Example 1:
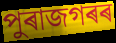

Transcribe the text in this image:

পুৰাজগৰৰ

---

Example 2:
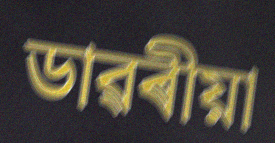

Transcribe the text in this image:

ডাৱৰীয়া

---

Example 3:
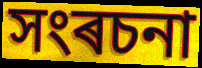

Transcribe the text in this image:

সংৰচনা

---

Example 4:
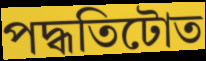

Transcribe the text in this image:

পদ্ধতিটোত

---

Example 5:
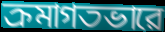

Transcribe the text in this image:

ক্ৰমাগতভাৱে